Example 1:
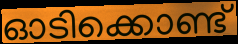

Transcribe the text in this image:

ഓടിക്കൊണ്ട്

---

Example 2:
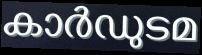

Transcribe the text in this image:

കാർഡുടമ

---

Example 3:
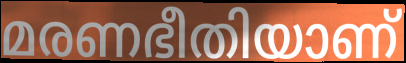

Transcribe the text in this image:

മരണഭീതിയാണ്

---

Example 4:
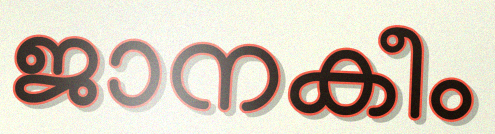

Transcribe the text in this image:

ജാനകീം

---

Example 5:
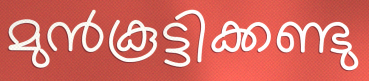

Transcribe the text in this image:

മുൻകൂട്ടിക്കണ്ടു